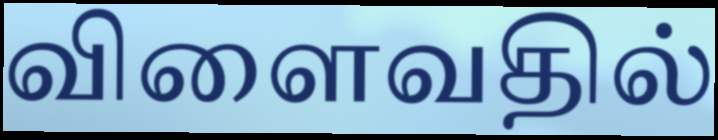
விளைவதில்